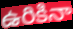
ఉరికినా